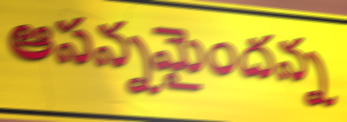
ఆసన్నమైందన్న